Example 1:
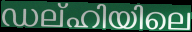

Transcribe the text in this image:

ഡല്ഹിയിലെ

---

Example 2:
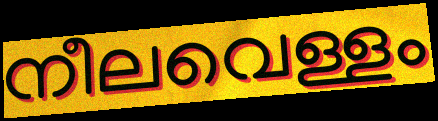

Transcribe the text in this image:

നീലവെള്ളം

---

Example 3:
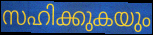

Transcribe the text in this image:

സഹിക്കുകയും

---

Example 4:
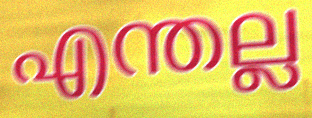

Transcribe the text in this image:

എന്തല്ല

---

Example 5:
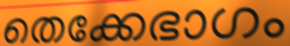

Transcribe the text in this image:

തെക്കേഭാഗം